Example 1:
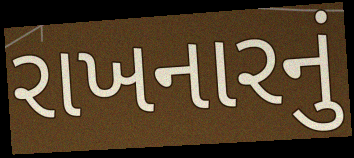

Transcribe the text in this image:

રાખનારનું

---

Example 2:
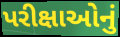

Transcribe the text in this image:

પરીક્ષાઓનું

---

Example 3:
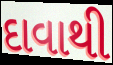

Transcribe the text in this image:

દાવાથી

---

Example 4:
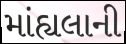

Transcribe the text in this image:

માંહ્યલાની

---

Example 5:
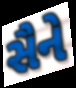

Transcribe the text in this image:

સૈને